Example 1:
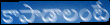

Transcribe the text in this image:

కాపాడాలంటే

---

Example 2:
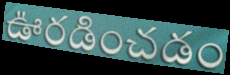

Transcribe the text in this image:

ఊరడించడం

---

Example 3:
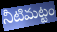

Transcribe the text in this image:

నీటిమట్టం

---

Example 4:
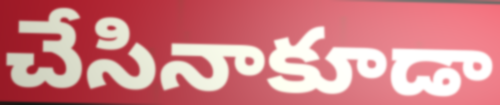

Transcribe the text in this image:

చేసినాకూడా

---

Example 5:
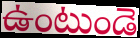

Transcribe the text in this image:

ఉంటుండె